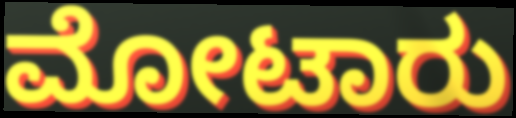
ಮೋಟಾರು